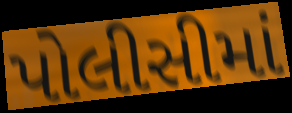
પોલીસીમાં